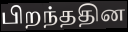
பிறந்ததின